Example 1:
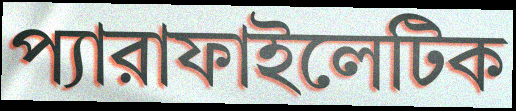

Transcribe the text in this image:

প্যারাফাইলেটিক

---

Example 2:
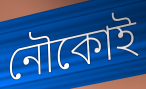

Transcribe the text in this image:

নৌকোই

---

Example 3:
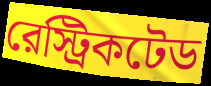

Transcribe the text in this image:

রেস্ট্রিকটেড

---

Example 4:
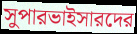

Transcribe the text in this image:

সুপারভাইসারদের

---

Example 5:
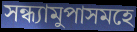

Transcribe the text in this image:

সন্ধ্যামুপাসমহে